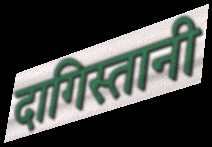
दागिस्तानी